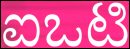
ಐಒಟಿ